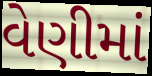
વેણીમાં